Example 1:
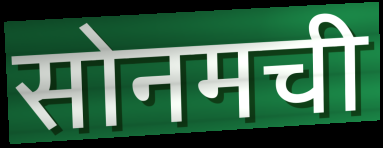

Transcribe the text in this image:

सोनमची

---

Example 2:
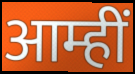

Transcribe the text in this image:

आम्हीं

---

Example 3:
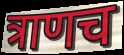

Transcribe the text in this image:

त्राणच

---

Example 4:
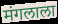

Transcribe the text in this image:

मंगलाला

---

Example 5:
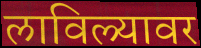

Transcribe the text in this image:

लाविल्यावर